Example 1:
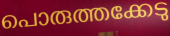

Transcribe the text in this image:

പൊരുത്തക്കേടു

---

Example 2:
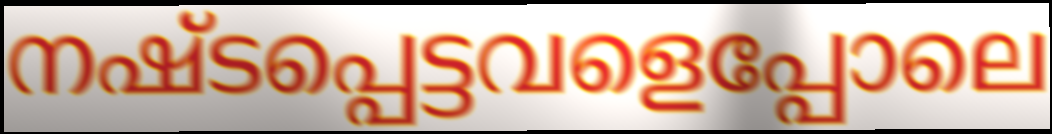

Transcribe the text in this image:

നഷ്ടപ്പെട്ടവളെപ്പോലെ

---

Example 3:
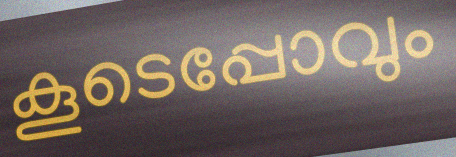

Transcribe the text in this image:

കൂടെപ്പോവും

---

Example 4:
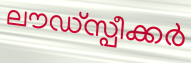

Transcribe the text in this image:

ലൗഡ്സ്പീക്കർ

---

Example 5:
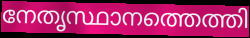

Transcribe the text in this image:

നേതൃസ്ഥാനത്തെത്തി